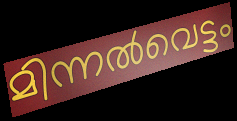
മിന്നൽവെട്ടം